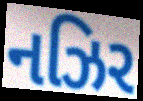
નઝિર